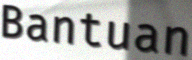
Bantuan